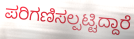
ಪರಿಗಣಿಸಲ್ಪಟ್ಟಿದ್ದಾರೆ